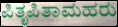
ಪಿತೃಪಿತಾಮಹರು